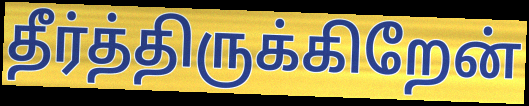
தீர்த்திருக்கிறேன்